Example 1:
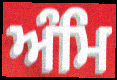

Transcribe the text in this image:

ਅੰਮਿ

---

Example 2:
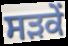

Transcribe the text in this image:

ਸੜਕੇਂ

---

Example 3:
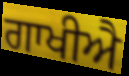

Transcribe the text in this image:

ਗਾਖੀਐ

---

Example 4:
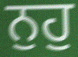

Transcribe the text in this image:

ਨੁਹੁ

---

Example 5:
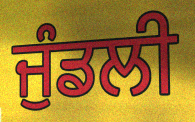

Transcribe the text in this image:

ਜੁੰਡਲੀ